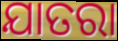
ଯାତରା